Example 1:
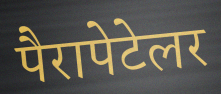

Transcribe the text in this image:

पैरापेटेलर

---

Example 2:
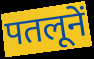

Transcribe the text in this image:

पतलूनें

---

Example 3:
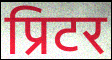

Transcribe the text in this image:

प्रिटर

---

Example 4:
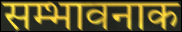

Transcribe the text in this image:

सम्भावनाक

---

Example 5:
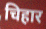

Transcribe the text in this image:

चिहार